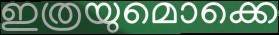
ഇത്രയുമൊക്കെ